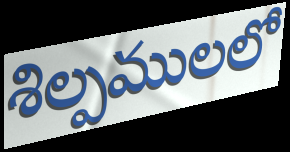
శిల్పములలో